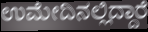
ಉಮೇದಿನಲ್ಲಿದ್ದಾರೆ